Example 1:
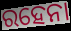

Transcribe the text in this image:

ରହେନା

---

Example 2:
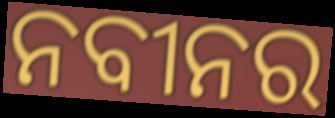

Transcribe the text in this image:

ନବୀନର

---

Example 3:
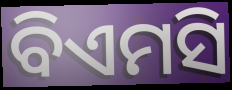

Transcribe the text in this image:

ବିଏମସି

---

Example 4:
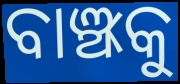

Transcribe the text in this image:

ବାଞ୍ଝକୁ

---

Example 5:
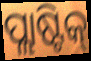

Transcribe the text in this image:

ପ୍ଲାଷ୍ଟିକ୍